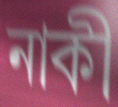
নাকী